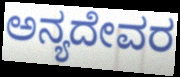
ಅನ್ಯದೇವರ